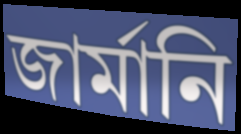
জার্মানি